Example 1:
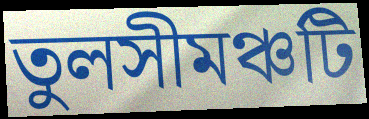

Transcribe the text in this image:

তুলসীমঞ্চটি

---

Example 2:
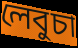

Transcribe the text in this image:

লেবুচা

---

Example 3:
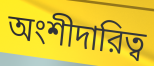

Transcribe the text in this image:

অংশীদারিত্ব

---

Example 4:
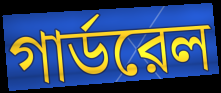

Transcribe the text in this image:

গার্ডরেল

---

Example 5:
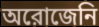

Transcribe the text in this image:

অরোজেনি